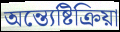
অন্ত্যেষ্টিক্রিয়া